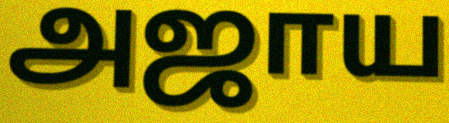
அஜாய